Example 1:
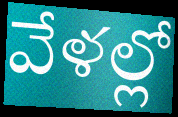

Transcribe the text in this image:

వేళల్లో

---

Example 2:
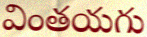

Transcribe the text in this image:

వింతయగు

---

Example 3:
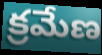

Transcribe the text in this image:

క్రమేణ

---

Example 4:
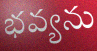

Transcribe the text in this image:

భవ్యను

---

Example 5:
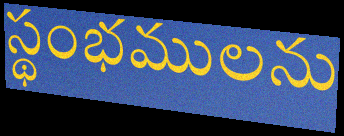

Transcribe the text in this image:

స్థంభములను